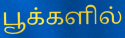
பூக்களில்